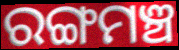
ରଙ୍ଗମଞ୍ଚ